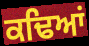
ਕਢਿਆਂ